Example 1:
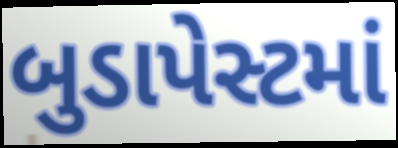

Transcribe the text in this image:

બુડાપેસ્ટમાં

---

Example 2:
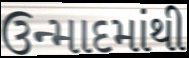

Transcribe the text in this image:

ઉન્માદમાંથી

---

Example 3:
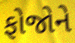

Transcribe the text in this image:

ફોજોને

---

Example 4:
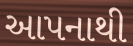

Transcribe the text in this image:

આપનાથી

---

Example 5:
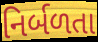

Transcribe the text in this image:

નિર્બળતા